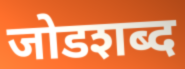
जोडशब्द